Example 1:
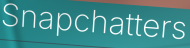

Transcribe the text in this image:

Snapchatters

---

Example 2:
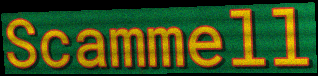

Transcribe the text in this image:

Scammell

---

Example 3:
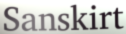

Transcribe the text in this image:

Sanskirt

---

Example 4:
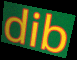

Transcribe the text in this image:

dib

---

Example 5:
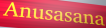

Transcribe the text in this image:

Anusasana